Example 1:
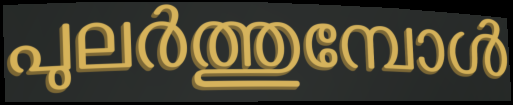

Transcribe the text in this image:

പുലർത്തുമ്പോൾ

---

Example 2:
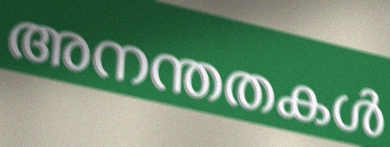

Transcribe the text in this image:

അനന്തതകൾ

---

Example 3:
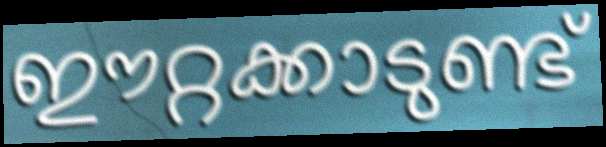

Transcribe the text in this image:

ഈറ്റക്കാടുണ്ട്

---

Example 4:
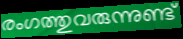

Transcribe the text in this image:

രംഗത്തുവരുന്നുണ്ട്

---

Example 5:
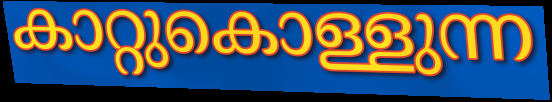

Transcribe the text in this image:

കാറ്റുകൊള്ളുന്ന